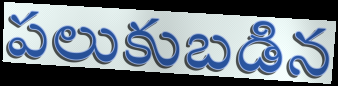
పలుకుబడిన